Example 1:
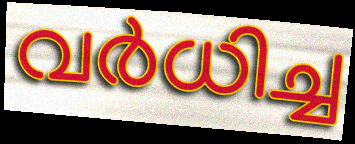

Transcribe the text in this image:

വർധിച്ച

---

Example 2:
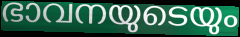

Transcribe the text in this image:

ഭാവനയുടെയും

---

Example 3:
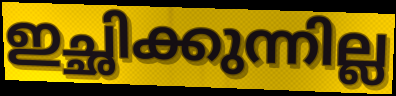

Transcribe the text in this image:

ഇച്ഛിക്കുന്നില്ല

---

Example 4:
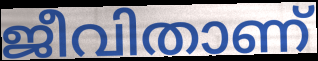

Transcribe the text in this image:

ജീവിതാണ്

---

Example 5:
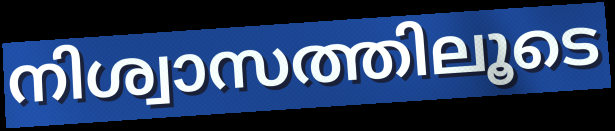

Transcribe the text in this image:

നിശ്വാസത്തിലൂടെ